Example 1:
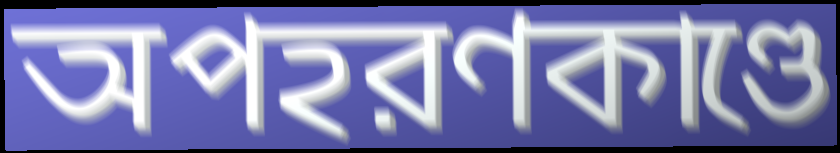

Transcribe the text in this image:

অপহরণকাণ্ডে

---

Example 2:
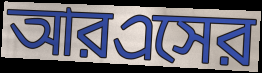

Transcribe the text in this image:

আরএসের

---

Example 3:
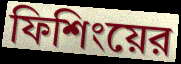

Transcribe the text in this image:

ফিশিংয়ের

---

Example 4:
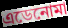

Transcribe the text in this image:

এডেনোমা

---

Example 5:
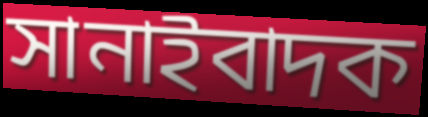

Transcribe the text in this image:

সানাইবাদক